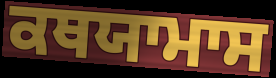
ਕਥਯਾਮਾਸ